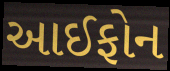
આઈફોન